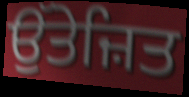
ਉੱਤੇਜ਼ਿਤ